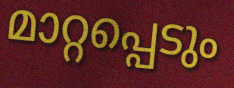
മാറ്റപ്പെടും